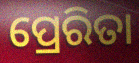
ପ୍ରେରିତା